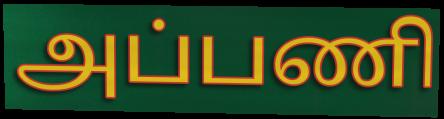
அப்பணி